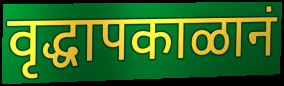
वृद्धापकाळानं